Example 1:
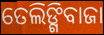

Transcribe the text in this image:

ତେଲିଙ୍ଗିବାଜା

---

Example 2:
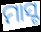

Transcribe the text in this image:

ମାସ୍ଟ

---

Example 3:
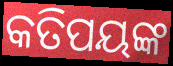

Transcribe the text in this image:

କତିପୟଙ୍କ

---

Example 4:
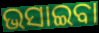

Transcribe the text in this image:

ଭସାଇବା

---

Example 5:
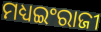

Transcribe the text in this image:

ମଧ୍ୟଇଂରାଜୀ